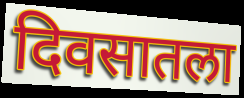
दिवसातला